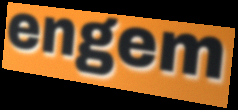
engem